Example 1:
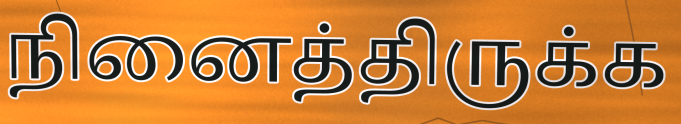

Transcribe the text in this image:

நினைத்திருக்க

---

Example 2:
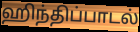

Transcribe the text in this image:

ஹிந்திப்பாடல்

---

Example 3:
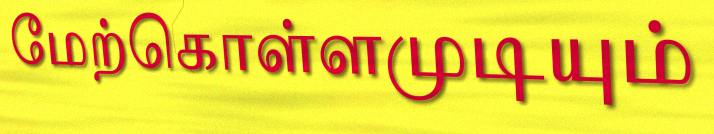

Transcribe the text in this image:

மேற்கொள்ளமுடியும்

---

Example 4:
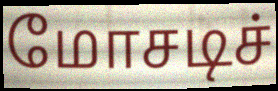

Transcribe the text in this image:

மோசடிச்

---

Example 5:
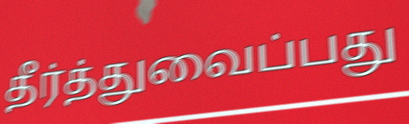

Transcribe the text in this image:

தீர்த்துவைப்பது